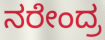
ನರೇಂದ್ರ